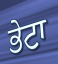
ਭੇਟਾ